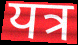
यत्र